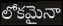
లోకమైనా